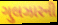
ગુલઝારની